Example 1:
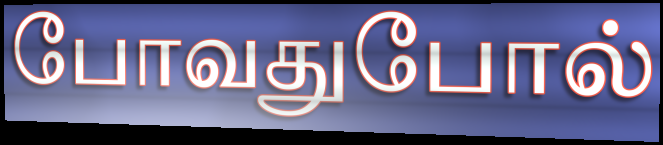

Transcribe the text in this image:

போவதுபோல்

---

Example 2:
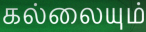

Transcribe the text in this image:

கல்லையும்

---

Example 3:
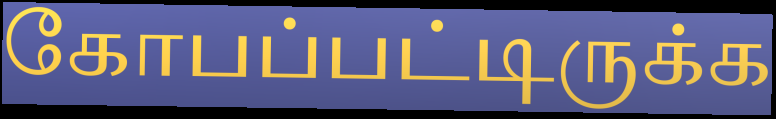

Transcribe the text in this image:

கோபப்பட்டிருக்க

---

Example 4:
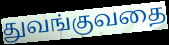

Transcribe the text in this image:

துவங்குவதை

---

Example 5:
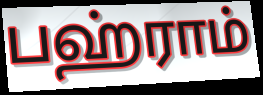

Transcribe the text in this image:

பஹ்ராம்